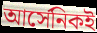
আর্সেনিকই